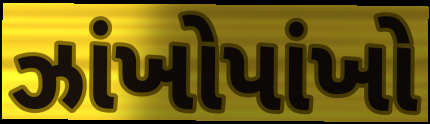
ઝાંખોપાંખો